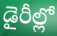
డైరీల్లో